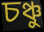
চঞ্চু